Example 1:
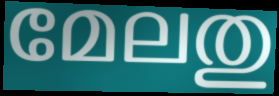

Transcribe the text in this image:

മേലതു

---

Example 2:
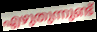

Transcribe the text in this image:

എഴുതുന്നുണ്ട്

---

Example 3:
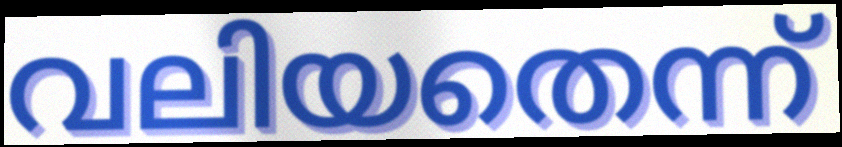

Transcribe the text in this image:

വലിയതെന്ന്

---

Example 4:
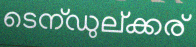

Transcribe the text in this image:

ടെന്ഡുല്ക്കര്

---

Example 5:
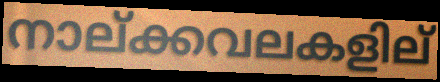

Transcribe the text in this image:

നാല്ക്കവലകളില്